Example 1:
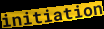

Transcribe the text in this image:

initiation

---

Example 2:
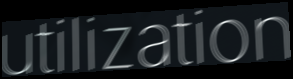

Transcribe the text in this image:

utilization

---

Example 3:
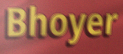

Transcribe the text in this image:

Bhoyer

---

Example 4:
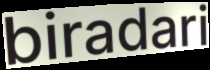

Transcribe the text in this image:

biradari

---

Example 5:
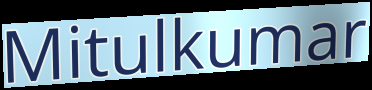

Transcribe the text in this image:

Mitulkumar